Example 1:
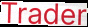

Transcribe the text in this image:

Trader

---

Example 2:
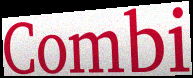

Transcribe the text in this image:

Combi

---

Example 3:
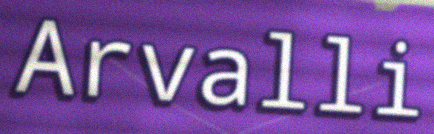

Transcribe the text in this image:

Arvalli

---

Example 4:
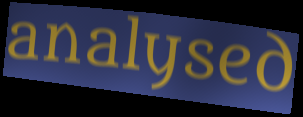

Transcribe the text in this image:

analysed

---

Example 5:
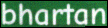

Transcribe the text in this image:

bhartan